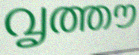
വൃത്തൗ